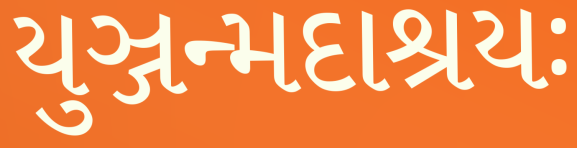
યુઞ્જન્મદાશ્રયઃ